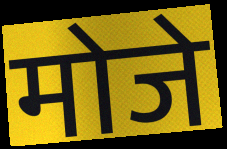
मोजे